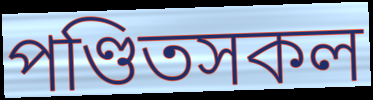
পণ্ডিতসকল